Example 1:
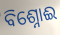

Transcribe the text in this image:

ବିଶ୍ନୋଈ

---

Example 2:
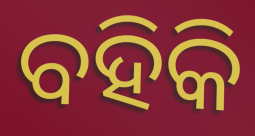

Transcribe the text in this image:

ବହିକି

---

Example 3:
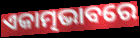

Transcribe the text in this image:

ଏକାତ୍ମଭାବରେ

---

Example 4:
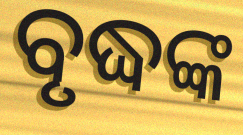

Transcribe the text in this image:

ବୃଦ୍ଧଙ୍କ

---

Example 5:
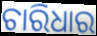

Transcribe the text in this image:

ଚାରିଧାର